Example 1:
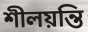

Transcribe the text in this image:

শীলয়ন্তি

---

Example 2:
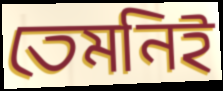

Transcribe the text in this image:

তেমনিই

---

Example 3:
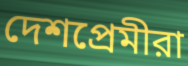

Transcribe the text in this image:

দেশপ্রেমীরা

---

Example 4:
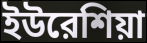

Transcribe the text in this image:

ইউরেশিয়া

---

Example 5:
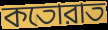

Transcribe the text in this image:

কতোরাত